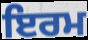
ਇਰਮ